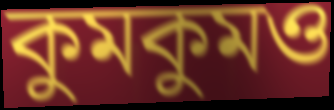
কুমকুমও